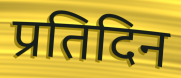
प्रतिदिन